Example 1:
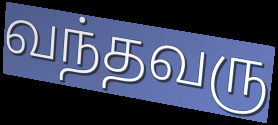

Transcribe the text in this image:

வந்தவரு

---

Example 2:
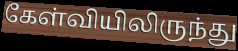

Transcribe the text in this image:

கேள்வியிலிருந்து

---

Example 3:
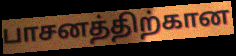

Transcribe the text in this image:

பாசனத்திற்கான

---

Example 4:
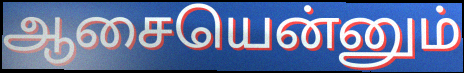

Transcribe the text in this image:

ஆசையென்னும்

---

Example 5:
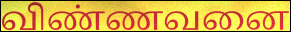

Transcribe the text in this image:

விண்ணவனை